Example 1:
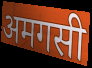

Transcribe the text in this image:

अमगसी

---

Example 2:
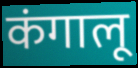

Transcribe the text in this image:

कंगालू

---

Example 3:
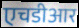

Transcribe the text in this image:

एचडीआर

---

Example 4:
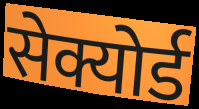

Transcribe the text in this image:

सेक्योर्ड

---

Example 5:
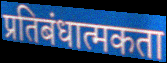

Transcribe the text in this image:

प्रतिबंधात्मकता